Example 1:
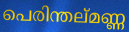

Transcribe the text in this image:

പെരിന്തല്മണ്ണ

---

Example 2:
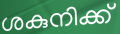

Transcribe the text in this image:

ശകുനിക്ക്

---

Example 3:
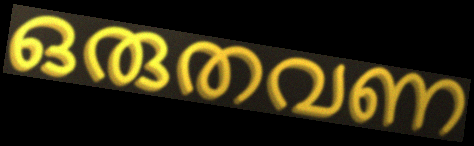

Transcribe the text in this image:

ഒരുതവണ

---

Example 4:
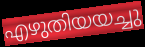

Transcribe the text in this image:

എഴുതിയയച്ചു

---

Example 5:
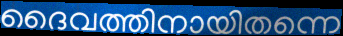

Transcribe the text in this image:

ദൈവത്തിനായിതന്നെ